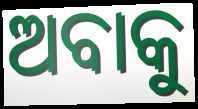
ଅବାକୁ